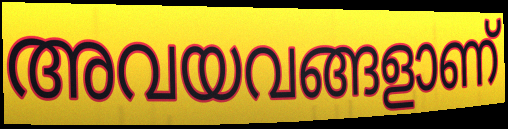
അവയവങ്ങളാണ്